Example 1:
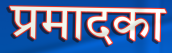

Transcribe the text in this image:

प्रमादका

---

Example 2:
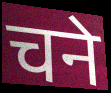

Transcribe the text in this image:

चने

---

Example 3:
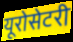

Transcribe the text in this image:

यूरोसेटरी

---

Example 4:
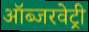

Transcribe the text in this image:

ऑब्जरवेट्री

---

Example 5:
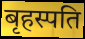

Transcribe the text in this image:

बृहस्‍पति